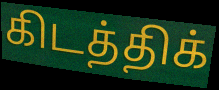
கிடத்திக்